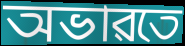
অভাৱতে